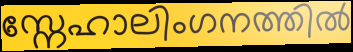
സ്നേഹാലിംഗനത്തിൽ